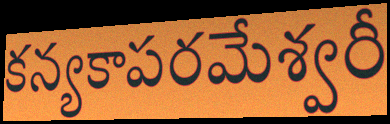
కన్యకాపరమేశ్వరీ